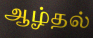
ஆழ்தல்